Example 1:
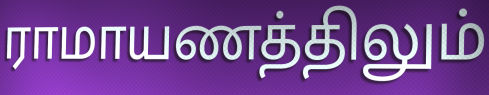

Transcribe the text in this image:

ராமாயணத்திலும்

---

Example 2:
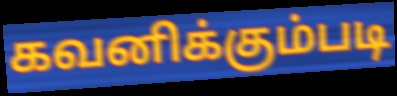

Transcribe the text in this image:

கவனிக்கும்படி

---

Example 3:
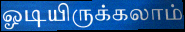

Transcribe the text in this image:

ஓடியிருக்கலாம்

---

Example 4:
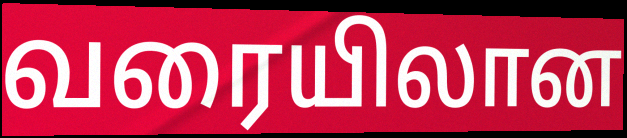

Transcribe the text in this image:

வரையிலான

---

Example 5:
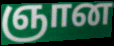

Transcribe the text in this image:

ஞான